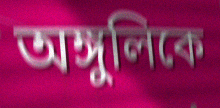
অঙ্গুলিকে